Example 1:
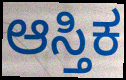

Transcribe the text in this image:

ಆಸ್ತಿಕ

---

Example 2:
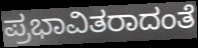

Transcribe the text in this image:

ಪ್ರಭಾವಿತರಾದಂತೆ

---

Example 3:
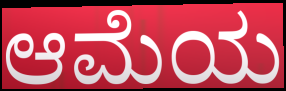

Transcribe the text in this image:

ಆಮೆಯ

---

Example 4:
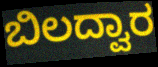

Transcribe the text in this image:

ಬಿಲದ್ವಾರ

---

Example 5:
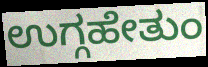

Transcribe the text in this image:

ಉಗ್ಗಹೇತುಂ